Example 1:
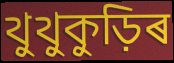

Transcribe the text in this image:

থুথুকুড়িৰ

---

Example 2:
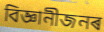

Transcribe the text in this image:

বিজ্ঞানীজনৰ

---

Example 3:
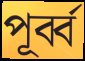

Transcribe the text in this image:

পূৰ্ব্ব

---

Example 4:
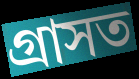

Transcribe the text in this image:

গ্ৰাসত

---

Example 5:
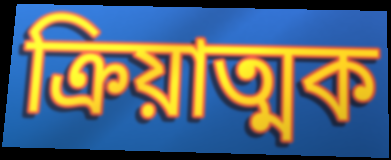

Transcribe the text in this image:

ক্ৰিয়াত্মক